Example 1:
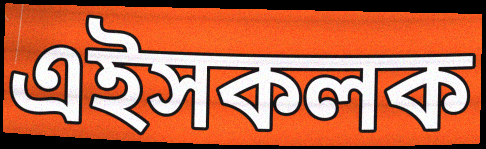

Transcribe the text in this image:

এইসকলক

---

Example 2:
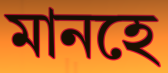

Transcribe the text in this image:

মানহে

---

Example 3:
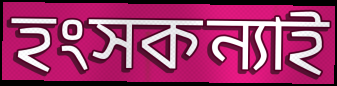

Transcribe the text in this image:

হংসকন্যাই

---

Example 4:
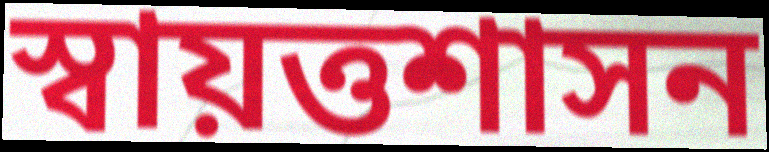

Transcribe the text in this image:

স্বায়ত্তশাসন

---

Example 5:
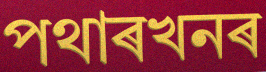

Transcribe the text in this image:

পথাৰখনৰ